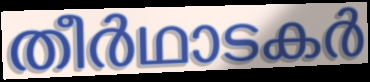
തീർഥാടകർ